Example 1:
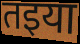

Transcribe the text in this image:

तइया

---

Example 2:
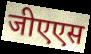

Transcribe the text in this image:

जीएएस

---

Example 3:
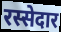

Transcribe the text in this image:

रस्सेदार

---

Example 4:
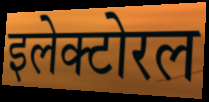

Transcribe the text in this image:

इलेक्टोरल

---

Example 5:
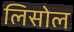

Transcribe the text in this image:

लिसोल